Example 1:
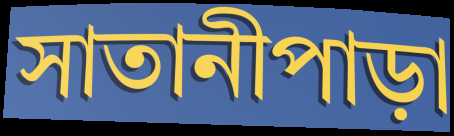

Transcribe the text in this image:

সাতানীপাড়া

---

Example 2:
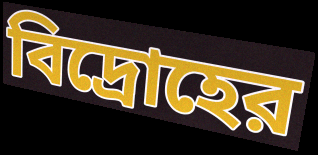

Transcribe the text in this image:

বিদ্রোহের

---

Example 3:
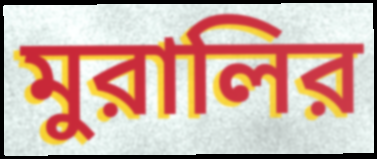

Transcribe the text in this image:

মুরালির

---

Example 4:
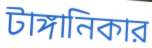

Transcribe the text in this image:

টাঙ্গানিকার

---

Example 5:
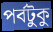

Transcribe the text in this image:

পর্বটুকু